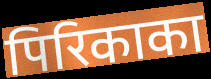
पिरिकाका